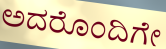
ಅದರೊಂದಿಗೇ